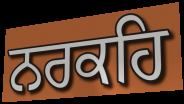
ਨਰਕਹਿ